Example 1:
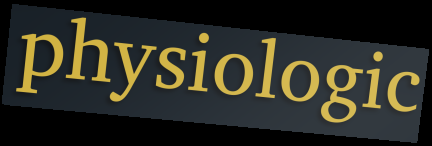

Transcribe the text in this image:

physiologic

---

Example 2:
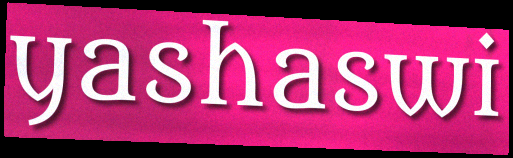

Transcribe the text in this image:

yashaswi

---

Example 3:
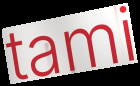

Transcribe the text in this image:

tami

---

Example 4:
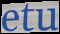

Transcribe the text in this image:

etu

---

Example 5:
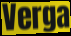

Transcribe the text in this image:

Verga